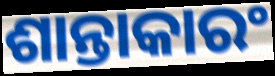
ଶାନ୍ତାକାରଂ